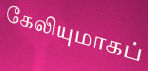
கேலியுமாகப்